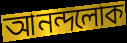
আনন্দলোক